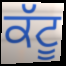
ਕੱਟੂ